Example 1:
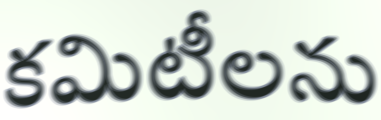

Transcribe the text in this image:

కమిటీలను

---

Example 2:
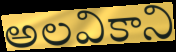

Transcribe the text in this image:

అలవికాని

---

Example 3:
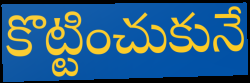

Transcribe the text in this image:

కొట్టించుకునే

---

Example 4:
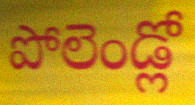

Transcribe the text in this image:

పోలెండ్లో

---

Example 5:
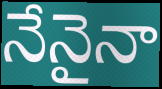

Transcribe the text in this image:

నేనైనా